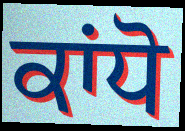
ਕਾਂਧੋ